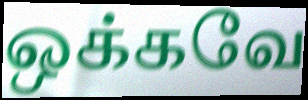
ஒக்கவே